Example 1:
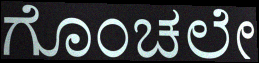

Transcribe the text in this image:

ಗೊಂಚಲೇ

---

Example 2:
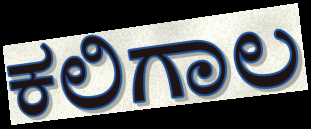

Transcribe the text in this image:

ಕಲಿಗಾಲ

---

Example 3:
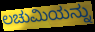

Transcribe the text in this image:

ಲಚುಮಿಯನ್ನು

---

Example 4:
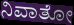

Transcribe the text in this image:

ನಿವಾತೋ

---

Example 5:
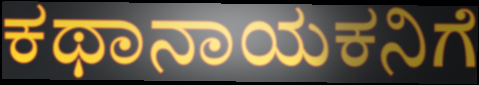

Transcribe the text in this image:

ಕಥಾನಾಯಕನಿಗೆ